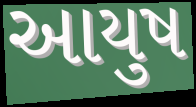
આયુષ